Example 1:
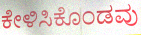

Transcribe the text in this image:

ಕೇಳಿಸಿಕೊಂಡವು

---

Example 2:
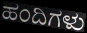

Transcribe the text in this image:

ಹಂದಿಗಳು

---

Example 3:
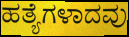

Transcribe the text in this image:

ಹತ್ಯೆಗಳಾದವು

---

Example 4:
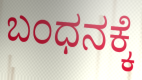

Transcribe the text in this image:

ಬಂಧನಕ್ಕೆ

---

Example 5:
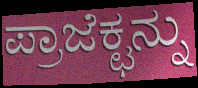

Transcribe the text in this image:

ಪ್ರಾಜೆಕ್ಟನ್ನು